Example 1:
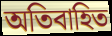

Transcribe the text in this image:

অতিবাহিত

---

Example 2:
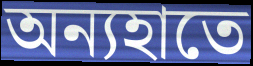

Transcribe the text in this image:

অন্যহাতে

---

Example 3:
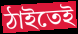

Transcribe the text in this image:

ঠাইতেই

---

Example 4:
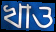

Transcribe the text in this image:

খাও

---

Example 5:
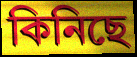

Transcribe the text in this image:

কিনিছে